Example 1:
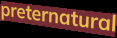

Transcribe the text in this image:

preternatural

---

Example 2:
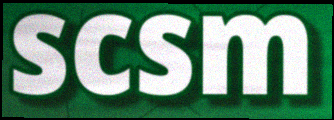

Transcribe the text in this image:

scsm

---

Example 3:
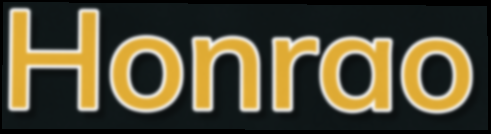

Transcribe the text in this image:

Honrao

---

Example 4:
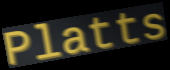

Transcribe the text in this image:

Platts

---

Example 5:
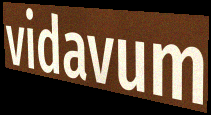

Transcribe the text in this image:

vidavum